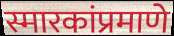
स्मारकांप्रमाणे